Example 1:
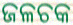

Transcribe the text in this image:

ଜଳଚକ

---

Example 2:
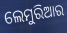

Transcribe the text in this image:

ଲେମୁରିଆର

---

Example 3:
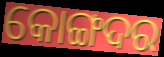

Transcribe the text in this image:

କୋଙ୍ଗଦର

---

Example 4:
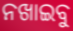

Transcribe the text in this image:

ନଖାଇବୁ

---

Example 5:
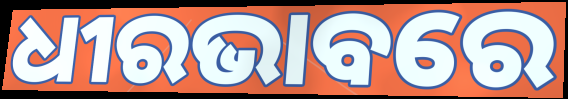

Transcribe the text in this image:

ଧୀରଭାବରେ